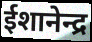
ईशानेन्द्र